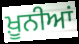
ਖ਼ੂਨੀਆਂ